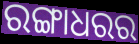
ରଙ୍ଗାଧରର